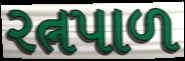
રત્નપાળ